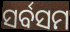
ସର୍ବସମ